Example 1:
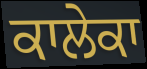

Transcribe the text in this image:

ਕਾਲੇਕਾ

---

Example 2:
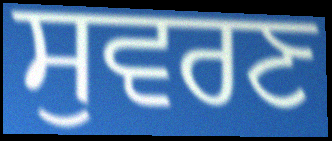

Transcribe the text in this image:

ਸੁਵਰਣ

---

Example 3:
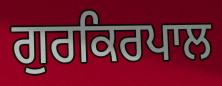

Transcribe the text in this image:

ਗੁਰਕਿਰਪਾਲ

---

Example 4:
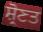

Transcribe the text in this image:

ਸ਼੍ਰੋਣਤ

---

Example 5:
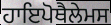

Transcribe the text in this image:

ਹਾਇਪੋਥੈਲੇਮਸ